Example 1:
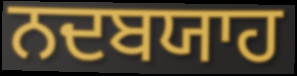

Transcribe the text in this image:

ਨਦਬਯਾਹ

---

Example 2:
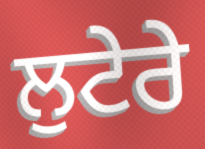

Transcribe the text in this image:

ਲੁਟੇਰੇ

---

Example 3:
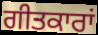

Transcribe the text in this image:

ਗੀਤਕਾਰਾਂ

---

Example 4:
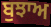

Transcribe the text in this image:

ਬੁਝਾਅ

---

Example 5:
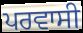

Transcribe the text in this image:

ਪਰਵਾਸੀ